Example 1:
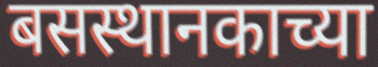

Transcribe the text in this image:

बसस्थानकाच्या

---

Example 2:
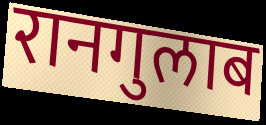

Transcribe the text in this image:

रानगुलाब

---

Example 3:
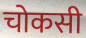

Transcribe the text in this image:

चोकसी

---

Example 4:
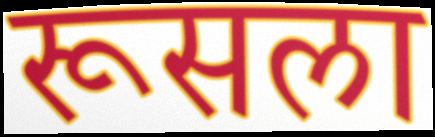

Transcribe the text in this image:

रूसला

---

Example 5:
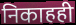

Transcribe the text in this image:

निकाहही